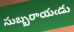
సుబ్బరాయఁడు